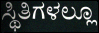
ಸ್ಥಿತಿಗಳಲ್ಲೂ